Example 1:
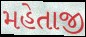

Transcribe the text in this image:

મહેતાજી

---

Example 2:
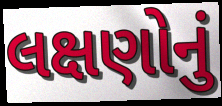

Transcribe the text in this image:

લક્ષણોનું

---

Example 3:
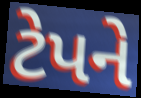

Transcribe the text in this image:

ટેપને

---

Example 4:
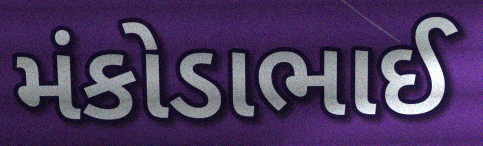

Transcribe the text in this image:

મંકોડાભાઈ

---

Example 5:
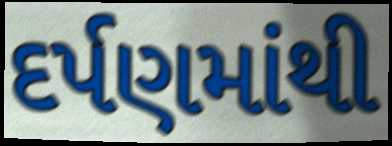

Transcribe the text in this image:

દર્પણમાંથી